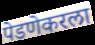
पेडणेकरला